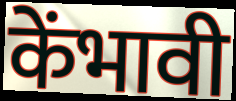
केंभावी